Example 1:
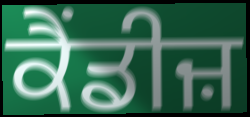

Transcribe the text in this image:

ਕੈਂਡੀਜ਼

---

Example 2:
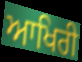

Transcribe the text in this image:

ਆਖਿਰੀ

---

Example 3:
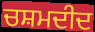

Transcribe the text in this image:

ਚਸ਼ਮਦੀਦ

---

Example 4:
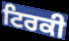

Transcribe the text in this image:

ਟਿਰਕੀ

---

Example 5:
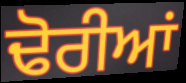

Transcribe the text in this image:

ਢੋਰੀਆਂ